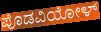
ಪೊಡವಿಯೋಳ್